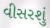
વીસરશું